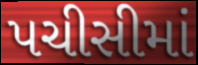
પચીસીમાં